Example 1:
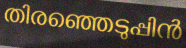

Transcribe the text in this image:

തിരഞ്ഞെടുപ്പിൻ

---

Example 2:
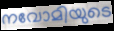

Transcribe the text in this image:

നവോമിയുടെ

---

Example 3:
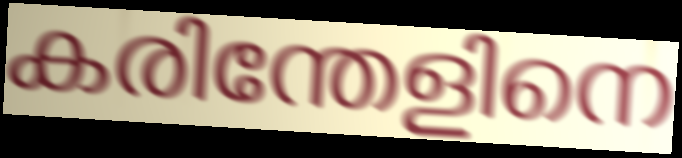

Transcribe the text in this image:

കരിന്തേളിനെ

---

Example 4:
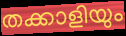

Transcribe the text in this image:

തക്കാളിയും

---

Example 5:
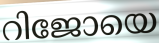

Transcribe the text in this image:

റിജോയെ